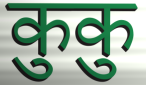
कुकु